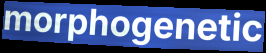
morphogenetic